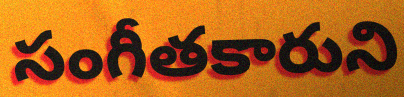
సంగీతకారుని